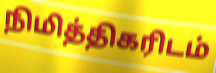
நிமித்திகரிடம்